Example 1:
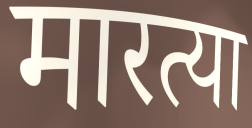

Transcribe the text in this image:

मारत्या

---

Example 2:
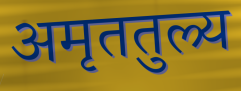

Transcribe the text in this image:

अमृततुल्य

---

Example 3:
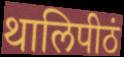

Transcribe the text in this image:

थालिपीठं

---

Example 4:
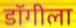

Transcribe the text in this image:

डॉगीला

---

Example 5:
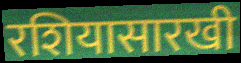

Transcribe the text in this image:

रशियासारखी